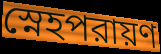
স্নেহপরায়ণ